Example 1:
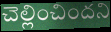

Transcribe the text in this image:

చెల్లించిందని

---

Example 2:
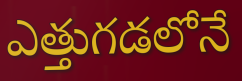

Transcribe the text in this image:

ఎత్తుగడలోనే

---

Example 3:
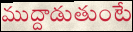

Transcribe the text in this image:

ముద్దాడుతుంటే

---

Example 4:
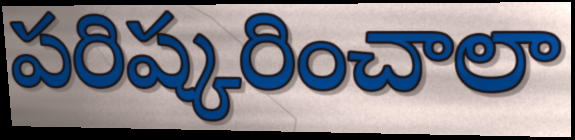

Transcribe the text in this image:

పరిష్కరించాలా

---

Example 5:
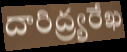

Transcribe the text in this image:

దారిద్ర్యరేఖ